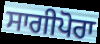
ਸਾਗੀਪੋਰਾ